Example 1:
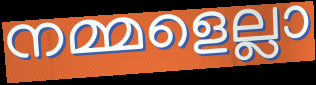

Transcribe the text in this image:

നമ്മളെല്ലാ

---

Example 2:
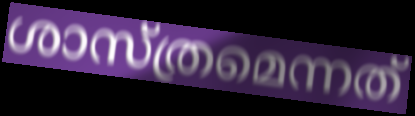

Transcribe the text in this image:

ശാസ്ത്രമെന്നത്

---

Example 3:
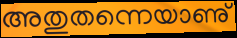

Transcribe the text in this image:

അതുതന്നെയാണു്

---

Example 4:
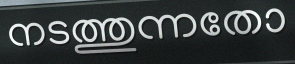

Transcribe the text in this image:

നടത്തുന്നതോ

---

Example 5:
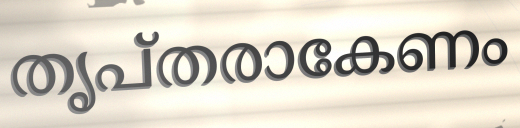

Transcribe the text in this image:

തൃപ്തരാകേണം